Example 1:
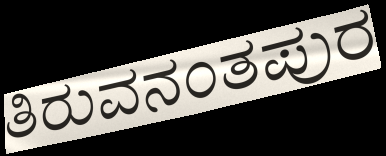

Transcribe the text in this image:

ತಿರುವನಂತಪುರ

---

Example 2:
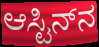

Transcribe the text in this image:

ಆಸ್ಟಿನ್‌ನ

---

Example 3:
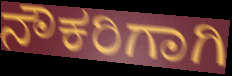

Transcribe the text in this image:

ನೌಕರಿಗಾಗಿ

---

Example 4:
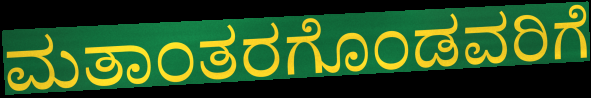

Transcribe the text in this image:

ಮತಾಂತರಗೊಂಡವರಿಗೆ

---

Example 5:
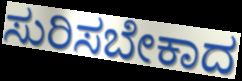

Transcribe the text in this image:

ಸುರಿಸಬೇಕಾದ